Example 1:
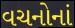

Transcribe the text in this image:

વચનોનાં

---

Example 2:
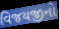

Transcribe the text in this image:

વિજયજીનો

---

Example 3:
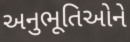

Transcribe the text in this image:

અનુભૂતિઓને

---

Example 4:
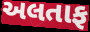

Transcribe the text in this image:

અલતાફ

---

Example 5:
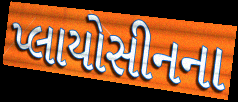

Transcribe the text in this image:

પ્લાયોસીનના